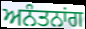
ਅਨੰਤਨਾਂਗ